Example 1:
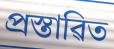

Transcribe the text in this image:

প্ৰস্তাৱিত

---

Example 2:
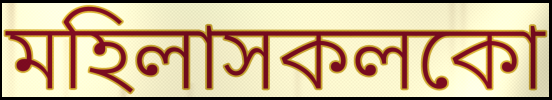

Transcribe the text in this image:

মহিলাসকলকো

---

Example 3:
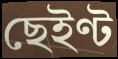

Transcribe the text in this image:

ছেইণ্ট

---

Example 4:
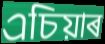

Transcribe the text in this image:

এচিয়াৰ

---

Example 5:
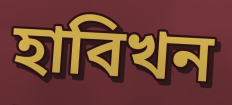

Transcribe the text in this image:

হাবিখন